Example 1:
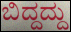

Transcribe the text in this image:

ಬಿದ್ದದ್ದು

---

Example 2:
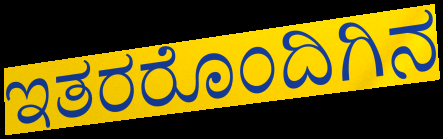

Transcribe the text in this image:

ಇತರರೊಂದಿಗಿನ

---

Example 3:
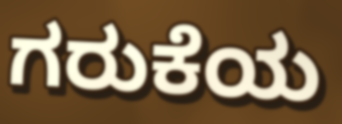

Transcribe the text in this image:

ಗರುಕೆಯ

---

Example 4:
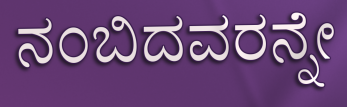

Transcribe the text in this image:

ನಂಬಿದವರನ್ನೇ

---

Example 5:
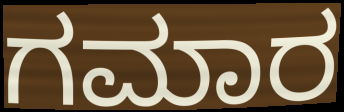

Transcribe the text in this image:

ಗಮಾರ